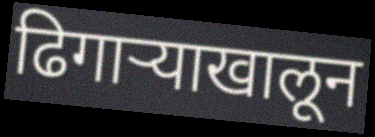
ढिगाऱ्याखालून